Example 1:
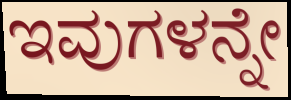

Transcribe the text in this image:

ಇವುಗಳನ್ನೇ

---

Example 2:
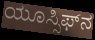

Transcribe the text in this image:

ಯೂಸ್ಸಿಫ್‌ನ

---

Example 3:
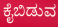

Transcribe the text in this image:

ಕೈಬಿಡುವ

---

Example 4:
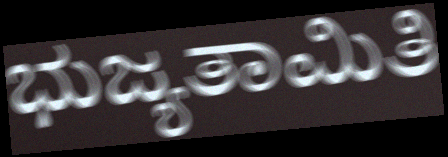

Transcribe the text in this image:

ಭುಜ್ಯತಾಮಿತಿ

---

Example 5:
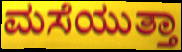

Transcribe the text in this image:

ಮಸೆಯುತ್ತಾ